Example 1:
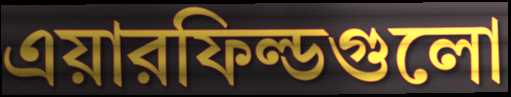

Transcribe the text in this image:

এয়ারফিল্ডগুলো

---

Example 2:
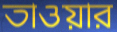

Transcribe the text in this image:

তাওয়ার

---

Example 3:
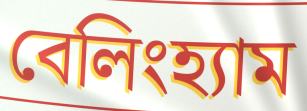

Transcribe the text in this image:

বেলিংহ্যাম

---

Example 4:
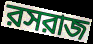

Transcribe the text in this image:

রসরাজ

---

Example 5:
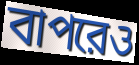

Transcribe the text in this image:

বাপরেও